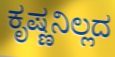
ಕೃಷ್ಣನಿಲ್ಲದ